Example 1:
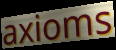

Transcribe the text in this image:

axioms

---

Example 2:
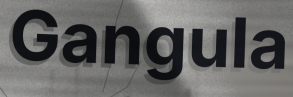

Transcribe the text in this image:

Gangula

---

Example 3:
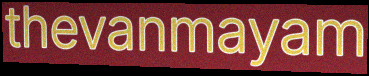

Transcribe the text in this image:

thevanmayam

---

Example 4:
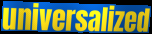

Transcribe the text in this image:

universalized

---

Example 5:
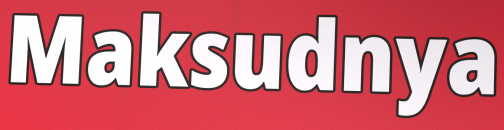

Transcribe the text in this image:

Maksudnya